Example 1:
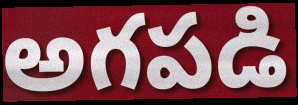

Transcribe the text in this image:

అగపడి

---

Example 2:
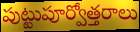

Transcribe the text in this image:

పుట్టుపూర్వోత్తరాలు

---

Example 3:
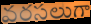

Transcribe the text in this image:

వరసలుగా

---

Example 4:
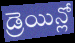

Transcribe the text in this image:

డ్రెయిన్లో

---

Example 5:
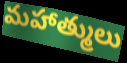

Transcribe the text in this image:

మహాత్ములు